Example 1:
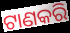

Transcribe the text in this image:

ଟାଣକରି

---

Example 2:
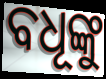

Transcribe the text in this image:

ବଧୂଙ୍କୁ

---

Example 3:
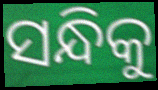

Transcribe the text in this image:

ସନ୍ଧିକୁ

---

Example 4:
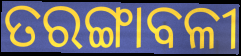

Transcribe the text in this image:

ତରଙ୍ଗାବଳୀ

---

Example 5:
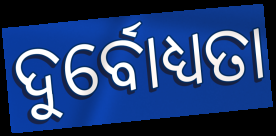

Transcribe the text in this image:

ଦୁର୍ବୋଧ୍ୟତା